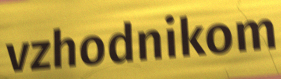
vzhodnikom